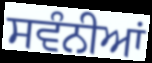
ਸਵੰਨੀਆਂ